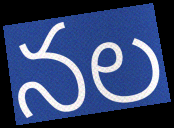
నల